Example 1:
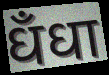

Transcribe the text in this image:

धँधा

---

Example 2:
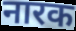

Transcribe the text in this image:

नारक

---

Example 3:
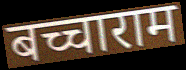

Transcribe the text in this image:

बच्चाराम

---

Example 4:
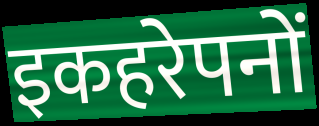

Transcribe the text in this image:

इकहरेपनों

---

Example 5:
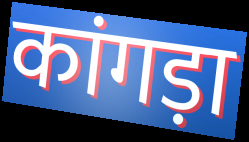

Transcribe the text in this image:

कांगड़ा